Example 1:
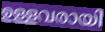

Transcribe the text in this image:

ഉള്ളവരായി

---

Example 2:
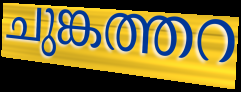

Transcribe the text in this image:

ചുങ്കത്തറ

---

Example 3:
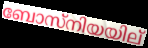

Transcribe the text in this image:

ബോസ്നിയയില്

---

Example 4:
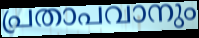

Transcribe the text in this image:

പ്രതാപവാനും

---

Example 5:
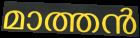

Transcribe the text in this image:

മാത്തൻ